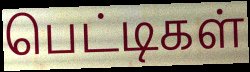
பெட்டிகள்